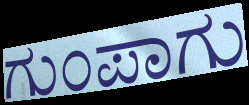
ಗುಂಪಾಗು